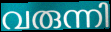
വരുന്നി